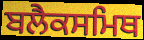
ਬਲੈਕਸਮਿਥ